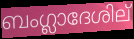
ബംഗ്ലാദേശില്